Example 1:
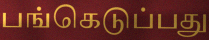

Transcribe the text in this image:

பங்கெடுப்பது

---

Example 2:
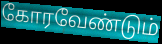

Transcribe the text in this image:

கோரவேண்டும்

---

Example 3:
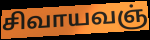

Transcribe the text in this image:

சிவாயவஞ்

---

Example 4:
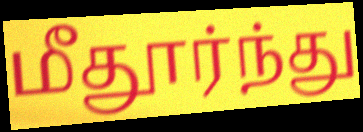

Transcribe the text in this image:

மீதூர்ந்து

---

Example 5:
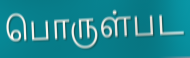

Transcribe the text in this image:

பொருள்பட